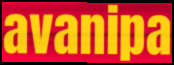
avanipa